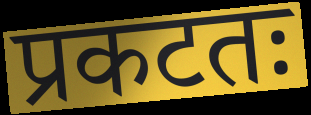
प्रकटतः